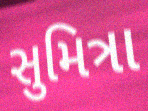
સુમિત્રા